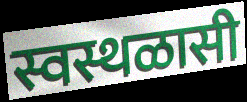
स्वस्थळासी